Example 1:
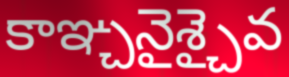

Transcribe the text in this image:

కాఞ్చనైశ్చైవ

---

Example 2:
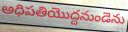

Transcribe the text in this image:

అధిపతియొద్దనుండెను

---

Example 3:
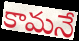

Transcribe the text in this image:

కామనే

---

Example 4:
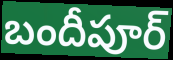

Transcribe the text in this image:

బందీపూర్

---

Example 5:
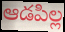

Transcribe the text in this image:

ఆడపిల్ల